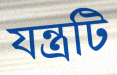
যন্ত্রটি